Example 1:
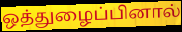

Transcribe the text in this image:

ஒத்துழைப்பினால்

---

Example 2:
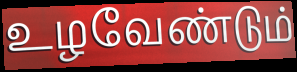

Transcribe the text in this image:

உழவேண்டும்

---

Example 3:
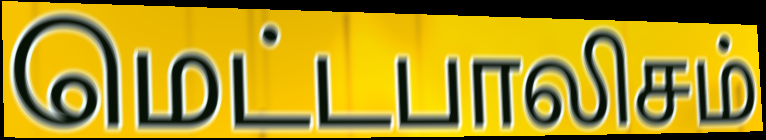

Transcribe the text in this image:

மெட்டபாலிசம்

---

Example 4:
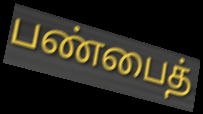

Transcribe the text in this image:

பண்பைத்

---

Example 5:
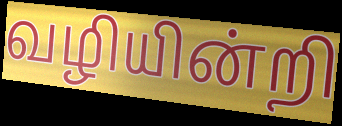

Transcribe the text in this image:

வழியின்றி